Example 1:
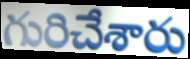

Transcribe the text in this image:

గురిచేశారు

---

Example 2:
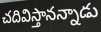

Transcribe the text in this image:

చదివిస్తానన్నాడు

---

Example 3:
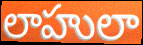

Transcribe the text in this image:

లాహులా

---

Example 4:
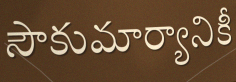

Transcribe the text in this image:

సౌకుమార్యానికీ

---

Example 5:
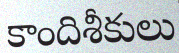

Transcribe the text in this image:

కాందిశీకులు